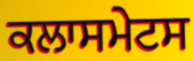
ਕਲਾਸਮੇਟਸ